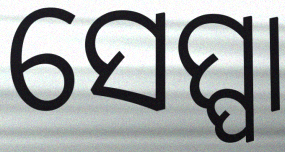
ସେପ୍ପା